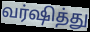
வர்ஷித்து